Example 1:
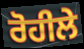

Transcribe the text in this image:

ਰੋਹੀਲੇ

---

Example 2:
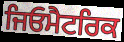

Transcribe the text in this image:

ਜਿਓਮੈਟਰਿਕ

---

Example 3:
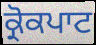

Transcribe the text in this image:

ਕ੍ਰੋਕਪਾਟ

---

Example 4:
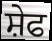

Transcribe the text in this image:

ਸ਼ੇਫ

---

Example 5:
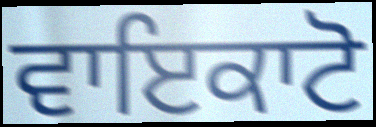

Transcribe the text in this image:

ਵਾਇਕਾਟੋ